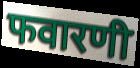
फवारणी